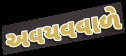
અવયવવાળે